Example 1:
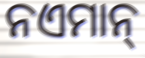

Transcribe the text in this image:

ନଏମାନ୍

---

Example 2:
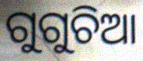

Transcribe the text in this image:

ଗୁଗୁଚିଆ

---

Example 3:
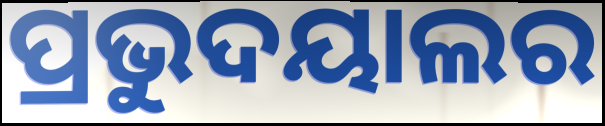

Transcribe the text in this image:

ପ୍ରଭୁଦୟାଲର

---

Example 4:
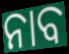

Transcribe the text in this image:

ନାବ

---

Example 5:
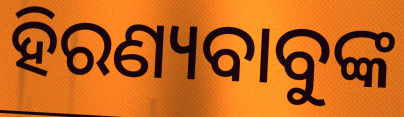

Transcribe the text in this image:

ହିରଣ୍ୟବାବୁଙ୍କ